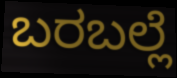
ಬರಬಲ್ಲೆ